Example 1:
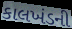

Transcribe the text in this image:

કાલખંડની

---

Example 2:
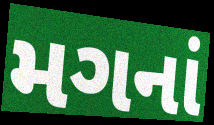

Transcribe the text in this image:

મગનાં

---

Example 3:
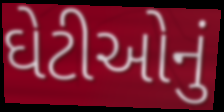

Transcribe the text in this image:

ઘેટીઓનું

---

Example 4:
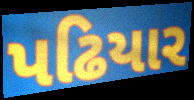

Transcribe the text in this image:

પઢિયાર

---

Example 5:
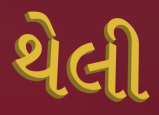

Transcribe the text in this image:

થેલી